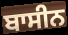
ਬਾਸੀਨ